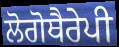
ਲੋਗੋਥੈਰੇਪੀ